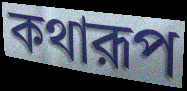
কথারূপ